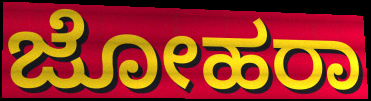
ಜೋಹರಾ